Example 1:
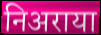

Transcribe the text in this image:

निअराया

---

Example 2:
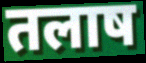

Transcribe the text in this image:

तलाष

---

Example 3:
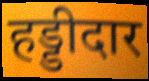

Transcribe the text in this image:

हड्डीदार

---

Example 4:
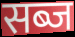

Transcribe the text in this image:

सब्ज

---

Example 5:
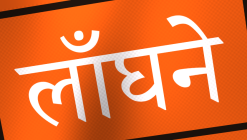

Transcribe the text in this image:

लाँघने